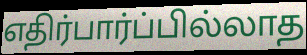
எதிர்பார்ப்பில்லாத